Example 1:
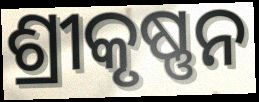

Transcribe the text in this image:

ଶ୍ରୀକୃଷ୍ଣନ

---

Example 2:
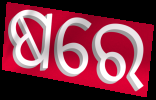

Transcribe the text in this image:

ଷରେ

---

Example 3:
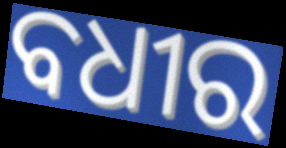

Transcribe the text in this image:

ବଧୀର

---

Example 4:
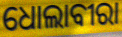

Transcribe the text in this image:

ଧୋଲାବୀରା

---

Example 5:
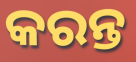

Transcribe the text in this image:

କରନ୍ତ